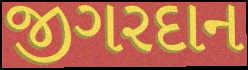
જીગરદાન